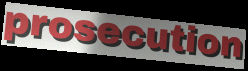
prosecution